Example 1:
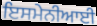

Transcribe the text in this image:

ਇਸਮੇਨੀਆਈ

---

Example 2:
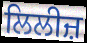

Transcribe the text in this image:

ਲਿਲੀਜ਼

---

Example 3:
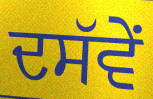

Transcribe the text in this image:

ਦਸੱਵੇਂ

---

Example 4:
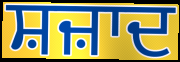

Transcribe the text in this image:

ਸ਼ਜ਼ਾਦ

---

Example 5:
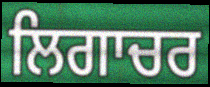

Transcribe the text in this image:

ਲਿਗਾਚਰ